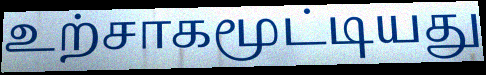
உற்சாகமூட்டியது